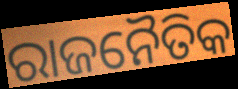
ରାଜନୈତିକ